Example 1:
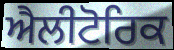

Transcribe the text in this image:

ਐਲੀਟੋਰਿਕ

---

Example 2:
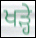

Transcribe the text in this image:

ਖਡ਼੍ਹੇ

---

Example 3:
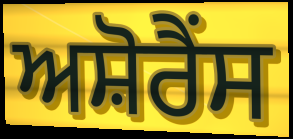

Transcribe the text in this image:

ਅਸ਼ੋਰੈਂਸ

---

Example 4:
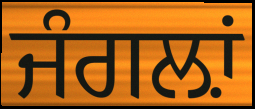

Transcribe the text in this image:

ਜੰਗਲ਼ਾਂ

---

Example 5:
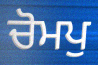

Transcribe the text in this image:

ਚੋਮਪੁ